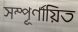
সম্পূর্ণায়িত